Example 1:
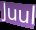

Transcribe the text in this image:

Juul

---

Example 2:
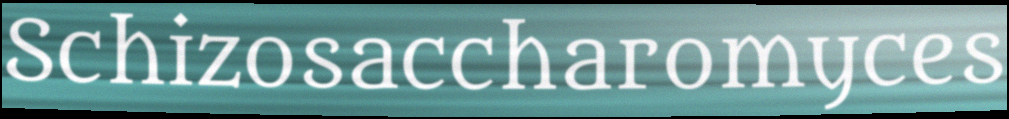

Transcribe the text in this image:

Schizosaccharomyces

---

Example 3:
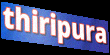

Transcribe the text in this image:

thiripura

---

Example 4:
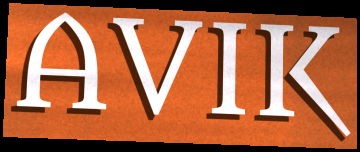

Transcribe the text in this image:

AVIK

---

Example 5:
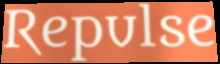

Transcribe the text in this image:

Repulse